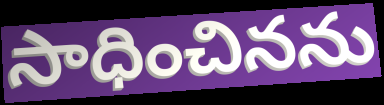
సాధించినను